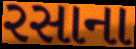
રસાના